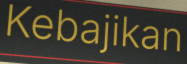
Kebajikan